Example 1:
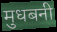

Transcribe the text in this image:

मुधबनी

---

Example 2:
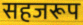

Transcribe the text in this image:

सहजरूप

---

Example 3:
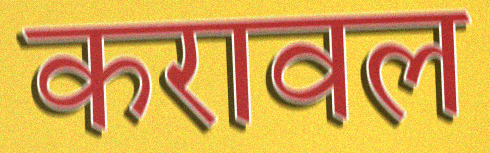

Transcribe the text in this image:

करावल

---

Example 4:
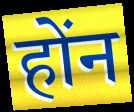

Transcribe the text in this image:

होंन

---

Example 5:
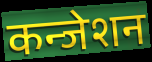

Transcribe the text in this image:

कन्जेशन